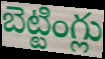
బెట్టింగ్లు